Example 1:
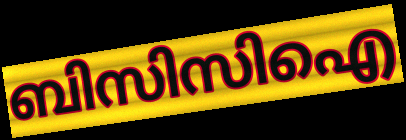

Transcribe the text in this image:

ബിസിസിഐ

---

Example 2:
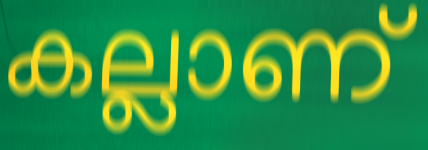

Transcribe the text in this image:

കല്ലാണ്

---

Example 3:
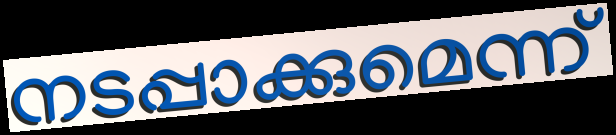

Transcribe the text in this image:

നടപ്പാക്കുമെന്ന്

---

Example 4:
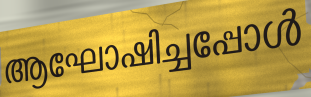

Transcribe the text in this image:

ആഘോഷിച്ചപ്പോൾ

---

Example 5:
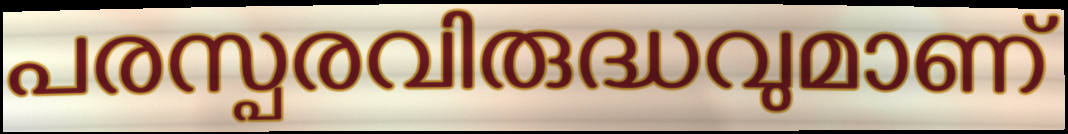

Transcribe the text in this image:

പരസ്പരവിരുദ്ധവുമാണ്